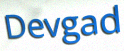
Devgad